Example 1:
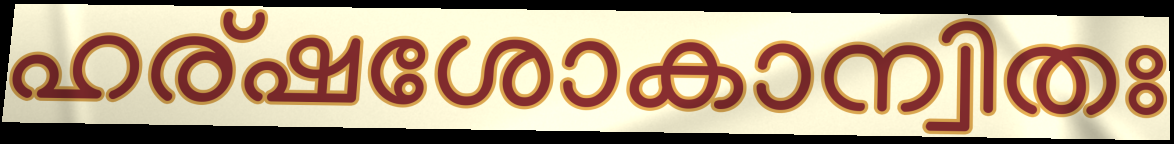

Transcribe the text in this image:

ഹര്ഷശോകാന്വിതഃ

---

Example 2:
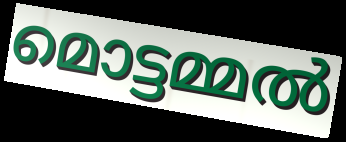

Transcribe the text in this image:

മൊട്ടമ്മൽ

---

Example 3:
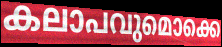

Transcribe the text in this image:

കലാപവുമൊക്കെ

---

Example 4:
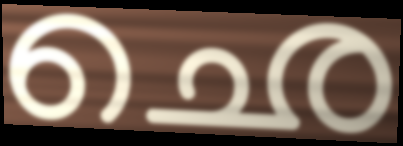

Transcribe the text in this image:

ഛെ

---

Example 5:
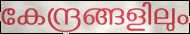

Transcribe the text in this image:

കേന്ദ്രങ്ങളിലും